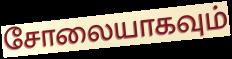
சோலையாகவும்